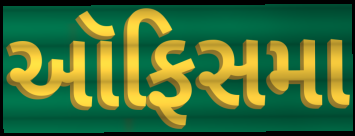
ઑફિસમા